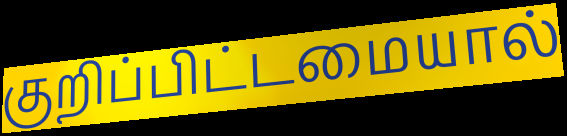
குறிப்பிட்டமையால்